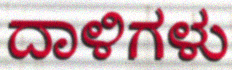
ದಾಳಿಗಳು